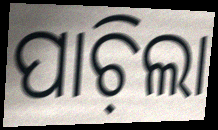
ପାଚ଼ିଲା